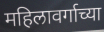
महिलावर्गाच्या